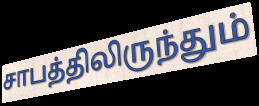
சாபத்திலிருந்தும்